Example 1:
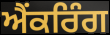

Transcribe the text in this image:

ਐਂਕਰਿੰਗ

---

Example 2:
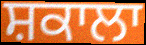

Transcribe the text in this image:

ਸ਼ਕਾਲਾ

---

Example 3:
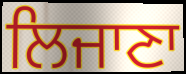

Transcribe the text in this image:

ਲਿਜਾਣਾ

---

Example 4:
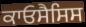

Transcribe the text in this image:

ਕਾਓਸੈਸਿਸ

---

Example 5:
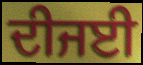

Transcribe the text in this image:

ਦੀਜਈ